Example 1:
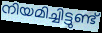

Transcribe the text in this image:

നിയമിച്ചിട്ടുണ്ട്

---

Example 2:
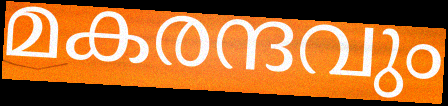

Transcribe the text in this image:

മകരന്ദവും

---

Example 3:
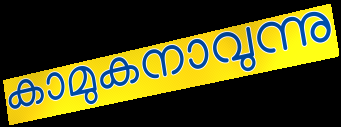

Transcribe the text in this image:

കാമുകനാവുന്നു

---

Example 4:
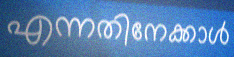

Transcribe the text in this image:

എന്നതിനേക്കാൾ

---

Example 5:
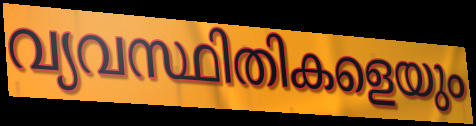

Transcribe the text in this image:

വ്യവസ്ഥിതികളെയും